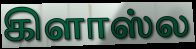
கிளாஸ்ல